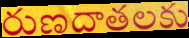
రుణదాతలకు